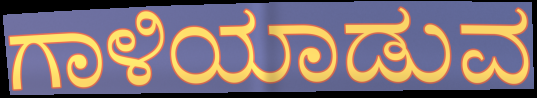
ಗಾಳಿಯಾಡುವ